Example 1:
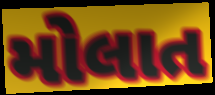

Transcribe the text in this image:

મોલાત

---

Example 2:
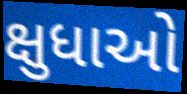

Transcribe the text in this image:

ક્ષુધાઓ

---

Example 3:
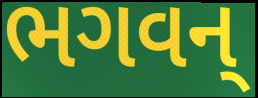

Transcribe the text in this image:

ભગવન્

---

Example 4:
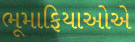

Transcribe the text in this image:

ભૂમાફિયાઓએ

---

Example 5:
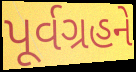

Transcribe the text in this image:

પૂર્વગ્રહને